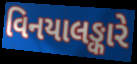
વિનયાલઙ્કારે